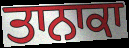
ਤਾਨਾਕਾ